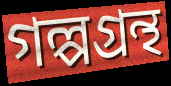
গল্পগ্রন্থ